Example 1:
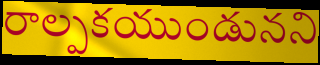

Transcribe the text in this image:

రాల్పకయుండునని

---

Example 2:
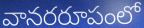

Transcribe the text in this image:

వానరరూపంలో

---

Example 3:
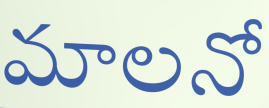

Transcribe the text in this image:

మాలనో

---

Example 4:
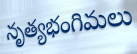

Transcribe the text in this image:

నృత్యభంగిమలు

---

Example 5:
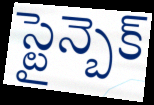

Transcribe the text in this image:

స్టైన్బెక్